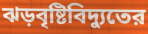
ঝড়বৃষ্টিবিদ্যুতের